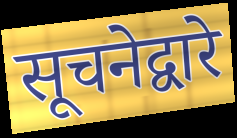
सूचनेद्वारे